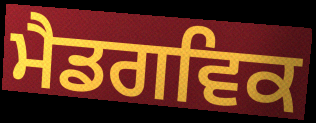
ਮੈਡਗਵਿਕ